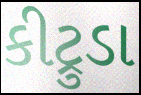
કીટ્રુડા